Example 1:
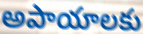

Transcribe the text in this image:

అపాయాలకు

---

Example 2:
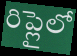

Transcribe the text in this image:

రిప్లైలో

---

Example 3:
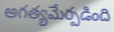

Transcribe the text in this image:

అగత్యమేర్పడింది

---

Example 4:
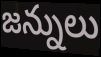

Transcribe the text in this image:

జన్నులు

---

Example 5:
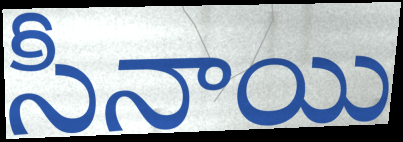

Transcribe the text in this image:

సీనాయి